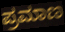
ಪ್ರಮಾಣ